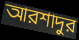
আরশাদুর